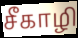
சீகாழி